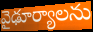
వైఢూర్యాలను